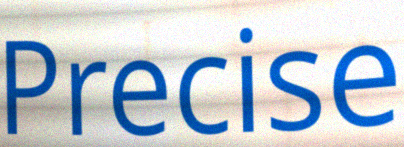
Precise